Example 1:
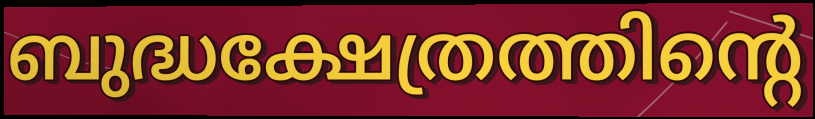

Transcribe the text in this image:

ബുദ്ധക്ഷേത്രത്തിന്റെ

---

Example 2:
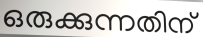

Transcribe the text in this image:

ഒരുക്കുന്നതിന്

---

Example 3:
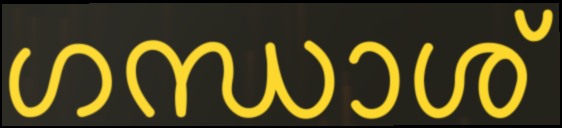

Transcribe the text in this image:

ഗന്ധാശ്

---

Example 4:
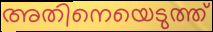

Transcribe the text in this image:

അതിനെയെടുത്ത്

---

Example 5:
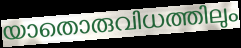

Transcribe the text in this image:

യാതൊരുവിധത്തിലും